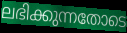
ലഭിക്കുന്നതോടെ